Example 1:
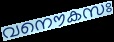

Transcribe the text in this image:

വനൌകസഃ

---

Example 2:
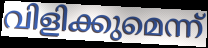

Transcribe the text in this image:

വിളിക്കുമെന്ന്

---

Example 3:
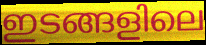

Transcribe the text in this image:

ഇടങ്ങളിലെ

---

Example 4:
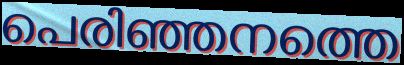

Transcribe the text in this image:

പെരിഞ്ഞനത്തെ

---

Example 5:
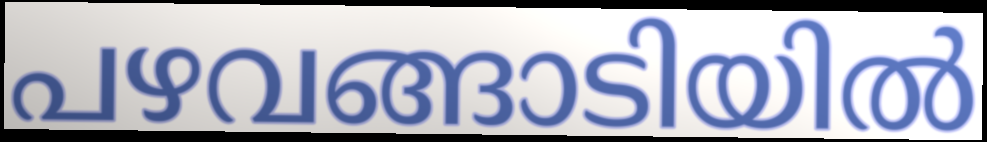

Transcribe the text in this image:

പഴവങ്ങാടിയിൽ